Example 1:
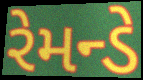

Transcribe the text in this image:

રેમન્ડે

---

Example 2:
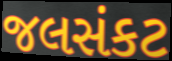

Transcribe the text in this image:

જલસંકટ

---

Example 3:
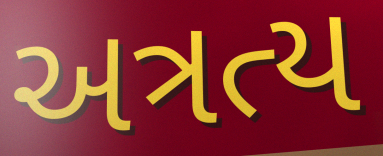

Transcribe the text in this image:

અત્રત્ય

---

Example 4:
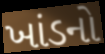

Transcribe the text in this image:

ખાંડનો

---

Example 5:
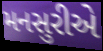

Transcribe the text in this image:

મનસુરીએ